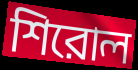
শিরোল